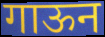
गाऊन